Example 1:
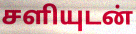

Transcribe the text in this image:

சளியுடன்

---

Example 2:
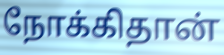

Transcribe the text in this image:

நோக்கிதான்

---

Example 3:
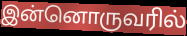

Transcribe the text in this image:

இன்னொருவரில்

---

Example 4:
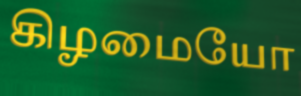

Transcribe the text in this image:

கிழமையோ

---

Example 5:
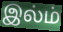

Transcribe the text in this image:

இல்ம்